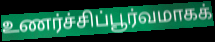
உணர்ச்சிப்பூர்வமாகக்